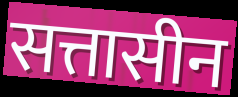
सत्तासीन